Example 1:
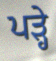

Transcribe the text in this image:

ਪੜ੍ਹੇ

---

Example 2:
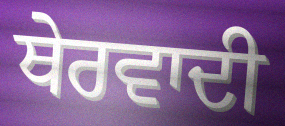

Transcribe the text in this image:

ਥੇਰਵਾਦੀ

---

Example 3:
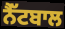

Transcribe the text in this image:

ਨੈੱਟਬਾਲ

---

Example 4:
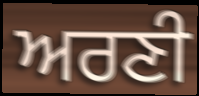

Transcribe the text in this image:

ਅਰਣੀ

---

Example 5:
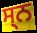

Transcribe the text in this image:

ਸ੍ਨ